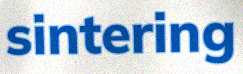
sintering